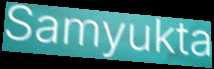
Samyukta